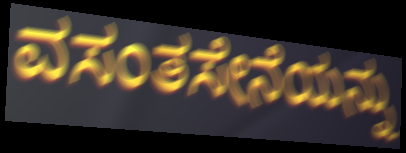
ವಸಂತಸೇನೆಯನ್ನು